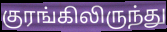
குரங்கிலிருந்து